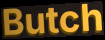
Butch